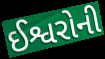
ઈશ્વરોની